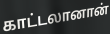
காட்டலானான்